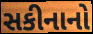
સકીનાનો